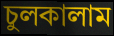
চুলকালাম